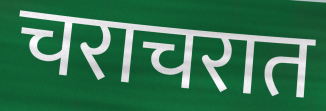
चराचरात